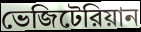
ভেজিটেরিয়ান